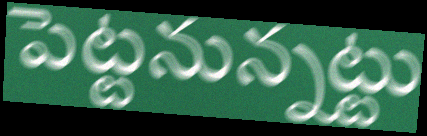
పెట్టనున్నట్టు